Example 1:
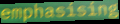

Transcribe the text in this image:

emphasising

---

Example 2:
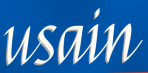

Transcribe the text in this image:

usain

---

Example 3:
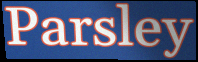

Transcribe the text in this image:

Parsley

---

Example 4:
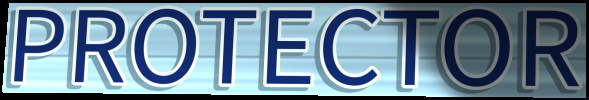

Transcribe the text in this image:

PROTECTOR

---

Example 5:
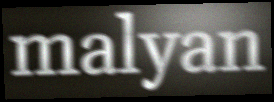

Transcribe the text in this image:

malyan